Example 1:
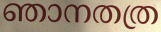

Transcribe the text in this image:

ഞാനതത്ര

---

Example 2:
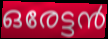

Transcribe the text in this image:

ഒരേട്ടൻ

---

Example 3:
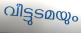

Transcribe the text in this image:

വീട്ടുടമയും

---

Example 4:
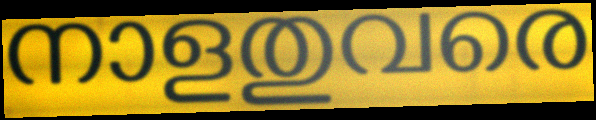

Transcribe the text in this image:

നാളതുവരെ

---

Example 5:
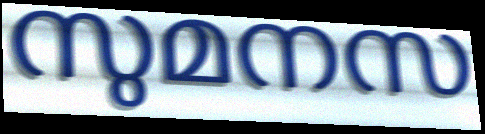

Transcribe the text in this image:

സുമനസ